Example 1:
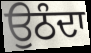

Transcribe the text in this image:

ਉਠੰਦਾ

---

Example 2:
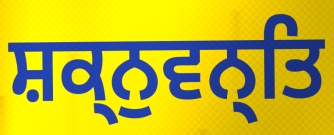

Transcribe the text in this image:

ਸ਼ਕ੍ਨੁਵਨ੍ਤਿ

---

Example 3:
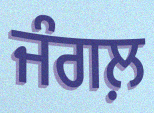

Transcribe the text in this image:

ਜੰਗਲ਼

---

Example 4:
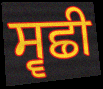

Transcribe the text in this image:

ਸ੍ਵਛੀ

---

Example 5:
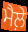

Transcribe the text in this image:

ਮੈਲ਼ੇ